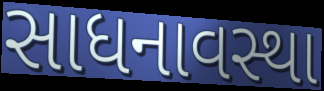
સાધનાવસ્થા